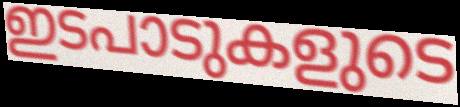
ഇടപാടുകളുടെ